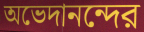
অভেদানন্দের